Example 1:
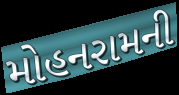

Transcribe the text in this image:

મોહનરામની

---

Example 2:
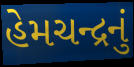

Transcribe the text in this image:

હેમચન્દ્રનું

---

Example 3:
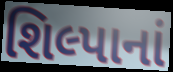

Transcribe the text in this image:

શિલ્પાનાં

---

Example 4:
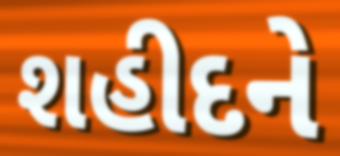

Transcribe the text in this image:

શહીદને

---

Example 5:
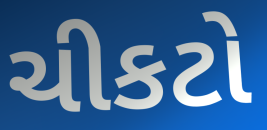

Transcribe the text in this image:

ચીકટો